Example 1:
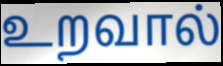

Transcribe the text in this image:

உறவால்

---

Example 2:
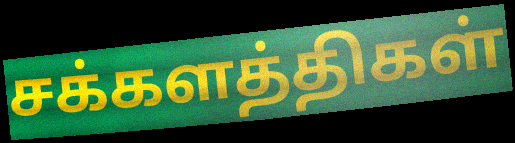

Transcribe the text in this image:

சக்களத்திகள்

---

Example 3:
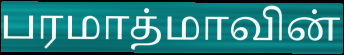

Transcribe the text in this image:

பரமாத்மாவின்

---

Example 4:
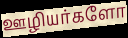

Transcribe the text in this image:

ஊழியர்களோ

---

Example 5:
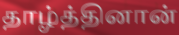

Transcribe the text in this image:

தாழ்த்தினான்